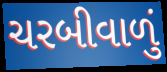
ચરબીવાળું